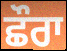
ਛੌਰਾ